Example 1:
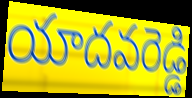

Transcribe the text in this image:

యాదవరెడ్డి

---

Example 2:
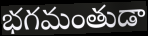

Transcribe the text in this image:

భగమంతుడా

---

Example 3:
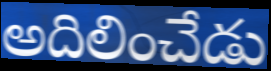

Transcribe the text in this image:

అదిలించేడు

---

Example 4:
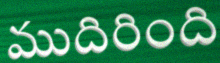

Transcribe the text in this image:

ముదిరింది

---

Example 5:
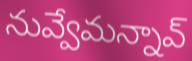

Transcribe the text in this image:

నువ్వేమన్నావ్